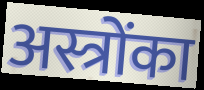
अस्त्रोंका